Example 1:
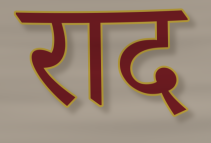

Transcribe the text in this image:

राद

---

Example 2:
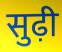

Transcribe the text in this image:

सुढ़ी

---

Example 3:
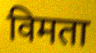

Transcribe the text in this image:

विमता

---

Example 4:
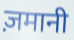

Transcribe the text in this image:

ज़मानी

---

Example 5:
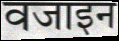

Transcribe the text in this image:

वजाइन